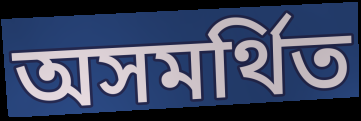
অসমর্থিত